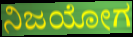
ನಿಜಯೋಗ